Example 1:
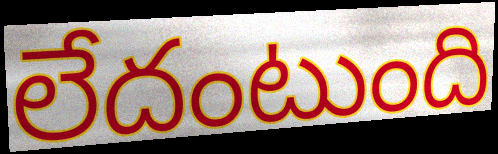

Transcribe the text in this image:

లేదంటుంది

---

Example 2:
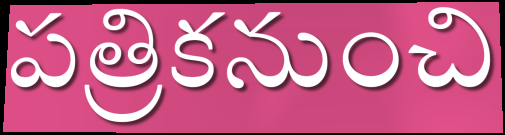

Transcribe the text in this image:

పత్రికనుంచి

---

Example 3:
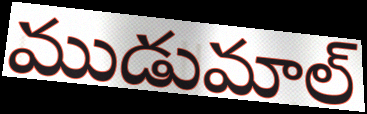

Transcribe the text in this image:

ముడుమాల్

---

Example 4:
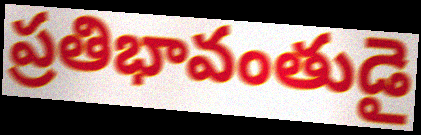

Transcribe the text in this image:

ప్రతిభావంతుడై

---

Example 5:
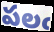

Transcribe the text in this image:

పలఁ